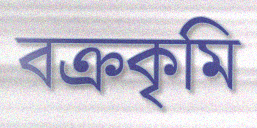
বক্রকৃমি